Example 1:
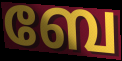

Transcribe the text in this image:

ബേ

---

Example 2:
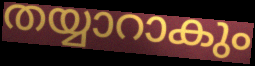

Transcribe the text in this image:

തയ്യാറാകും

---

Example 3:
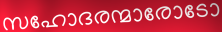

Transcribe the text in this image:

സഹോദരന്മാരോടോ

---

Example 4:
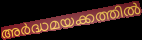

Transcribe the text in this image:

അർദ്ധമയക്കത്തിൽ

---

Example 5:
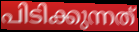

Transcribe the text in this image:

പിടിക്കുന്നത്